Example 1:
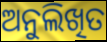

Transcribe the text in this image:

ଅନୁଲିଖିତ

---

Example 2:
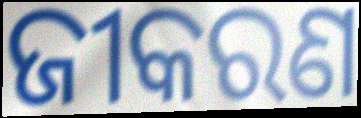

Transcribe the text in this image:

ଜୀକରଣ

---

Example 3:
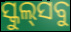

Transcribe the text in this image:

ସ୍କୁଲ୍‍ସବୁ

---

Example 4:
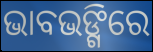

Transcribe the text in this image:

ଭାବଭଙ୍ଗିରେ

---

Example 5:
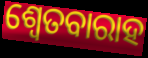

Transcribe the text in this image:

ଶ୍ଵେତବାରାହ